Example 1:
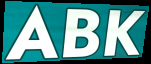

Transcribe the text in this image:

ABK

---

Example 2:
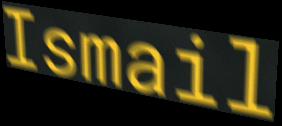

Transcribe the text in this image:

Ismail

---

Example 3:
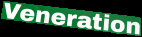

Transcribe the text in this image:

Veneration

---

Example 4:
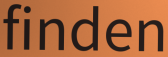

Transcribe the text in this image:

finden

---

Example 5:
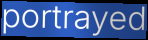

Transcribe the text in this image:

portrayed